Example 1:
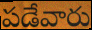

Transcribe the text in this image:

పడేవారు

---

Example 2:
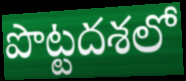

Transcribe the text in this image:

పొట్టదశలో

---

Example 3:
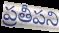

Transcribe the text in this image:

ప్రతీపని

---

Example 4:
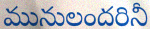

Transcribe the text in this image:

మునులందరినీ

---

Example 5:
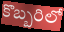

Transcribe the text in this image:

కొబ్బరిలో